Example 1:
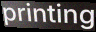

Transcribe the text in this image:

printing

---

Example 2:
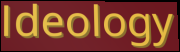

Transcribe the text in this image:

Ideology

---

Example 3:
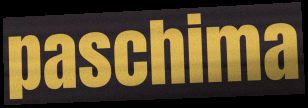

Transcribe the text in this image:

paschima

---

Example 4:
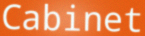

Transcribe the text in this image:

Cabinet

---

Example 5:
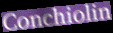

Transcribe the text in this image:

Conchiolin